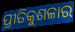
ପ୍ରୀତିକୁଶଳାର